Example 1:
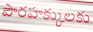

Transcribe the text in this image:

పౌరహక్కులకు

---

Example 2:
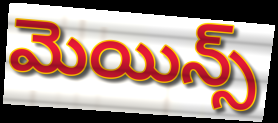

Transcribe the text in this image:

మెయిన్స్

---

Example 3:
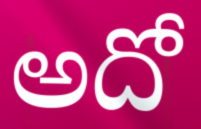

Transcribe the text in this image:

అదో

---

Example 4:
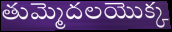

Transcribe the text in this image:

తుమ్మెదలయొక్క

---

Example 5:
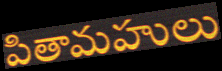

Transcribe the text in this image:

పితామహులు